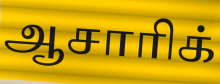
ஆசாரிக்